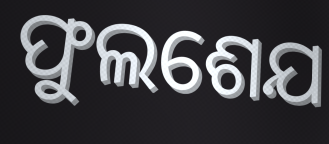
ଫୁଲଶେଯ